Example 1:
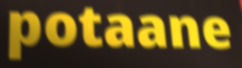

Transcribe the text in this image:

potaane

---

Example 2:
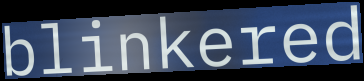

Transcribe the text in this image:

blinkered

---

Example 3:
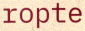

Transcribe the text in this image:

ropte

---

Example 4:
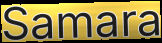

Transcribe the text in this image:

Samara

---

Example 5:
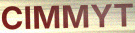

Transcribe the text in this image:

CIMMYT